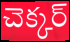
చెక్కర్